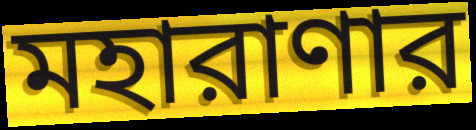
মহারাণার